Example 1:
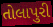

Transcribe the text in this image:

તોલાપુરી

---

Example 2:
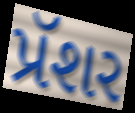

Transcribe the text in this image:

પ્રૅશર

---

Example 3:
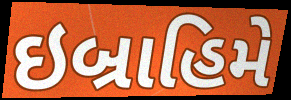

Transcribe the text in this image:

ઇબ્રાહિમે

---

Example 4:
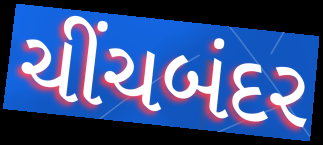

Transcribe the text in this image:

ચીંચબંદર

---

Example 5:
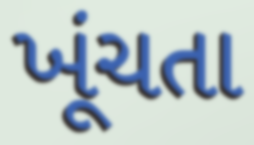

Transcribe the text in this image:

ખૂંચતા